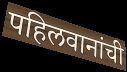
पहिलवानांची